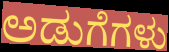
ಅಡುಗೆಗಳು